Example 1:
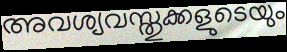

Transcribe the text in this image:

അവശ്യവസ്തുക്കളുടെയും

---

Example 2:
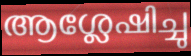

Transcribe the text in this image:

ആശ്ലേഷിച്ചു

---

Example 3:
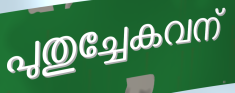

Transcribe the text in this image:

പുതുച്ചേകവന്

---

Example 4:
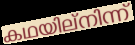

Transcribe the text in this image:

കഥയില്നിന്ന്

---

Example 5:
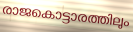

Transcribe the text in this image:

രാജകൊട്ടാരത്തിലും